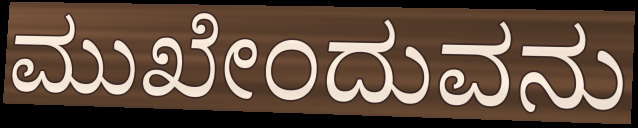
ಮುಖೇಂದುವನು